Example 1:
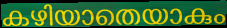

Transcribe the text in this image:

കഴിയാതെയാകും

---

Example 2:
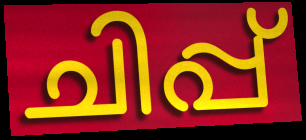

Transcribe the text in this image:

ചിപ്പ്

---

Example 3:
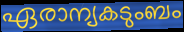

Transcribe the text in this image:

ഏരാന്യകടുംബം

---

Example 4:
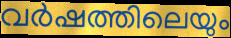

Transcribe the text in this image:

വർഷത്തിലെയും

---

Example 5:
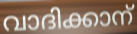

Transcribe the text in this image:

വാദിക്കാന്